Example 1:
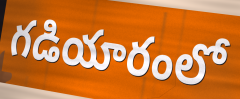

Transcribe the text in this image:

గడియారంలో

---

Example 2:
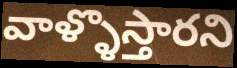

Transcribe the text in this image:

వాళ్ళొస్తారని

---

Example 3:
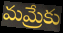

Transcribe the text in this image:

మమ్రేకు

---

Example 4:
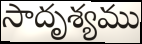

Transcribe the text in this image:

సాదృశ్యము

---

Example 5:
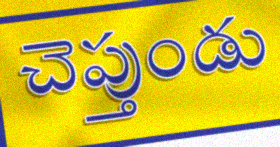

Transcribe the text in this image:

చెప్తుండు